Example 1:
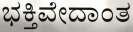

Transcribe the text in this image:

ಭಕ್ತಿವೇದಾಂತ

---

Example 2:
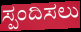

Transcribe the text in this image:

ಸ್ಪಂದಿಸಲು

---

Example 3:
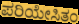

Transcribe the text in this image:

ಪರಿಯೇಸಿತಂ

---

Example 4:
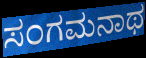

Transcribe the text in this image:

ಸಂಗಮನಾಥ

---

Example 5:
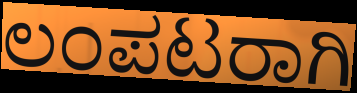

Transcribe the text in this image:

ಲಂಪಟರಾಗಿ